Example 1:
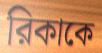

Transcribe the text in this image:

রিকাকে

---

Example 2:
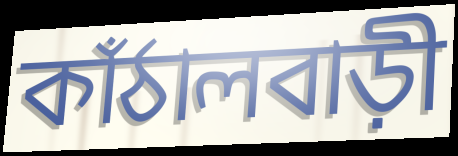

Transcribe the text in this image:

কাঁঠালবাড়ী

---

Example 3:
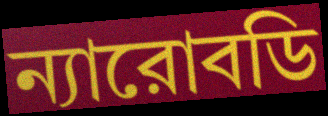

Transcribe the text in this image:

ন্যারোবডি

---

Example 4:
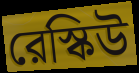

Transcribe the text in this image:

রেস্কিউ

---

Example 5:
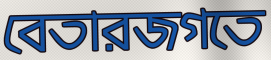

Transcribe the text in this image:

বেতারজগতে